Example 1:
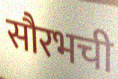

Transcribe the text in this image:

सौरभची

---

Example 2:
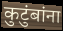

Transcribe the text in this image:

कुटुंबांना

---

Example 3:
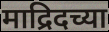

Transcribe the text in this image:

माद्रिदच्या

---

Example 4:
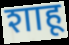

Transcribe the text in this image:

शाहू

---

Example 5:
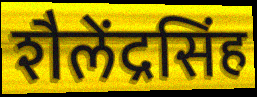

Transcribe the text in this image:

शैलेंद्रसिंह